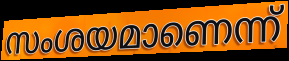
സംശയമാണെന്ന്